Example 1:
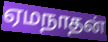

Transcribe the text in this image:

ஏமநாதன்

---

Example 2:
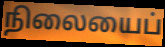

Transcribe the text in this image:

நிலையைப்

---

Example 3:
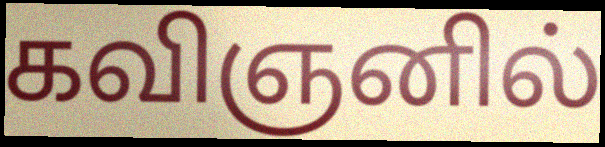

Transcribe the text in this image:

கவிஞனில்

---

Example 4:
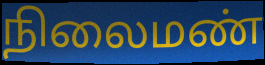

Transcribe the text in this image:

நிலைமண்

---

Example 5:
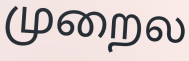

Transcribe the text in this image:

முறைல